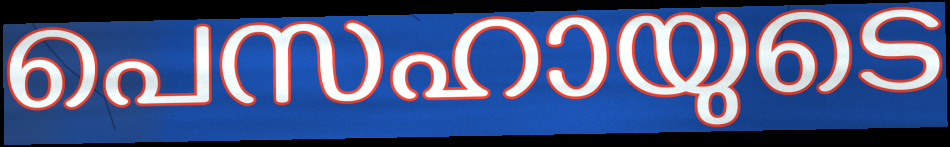
പെസഹായുടെ